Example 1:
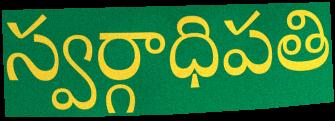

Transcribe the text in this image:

స్వర్గాధిపతి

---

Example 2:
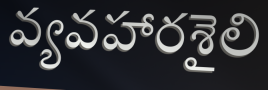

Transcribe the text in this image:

వ్యవహారశైలి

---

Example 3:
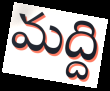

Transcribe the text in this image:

మద్ది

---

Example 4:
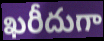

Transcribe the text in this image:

ఖరీదుగా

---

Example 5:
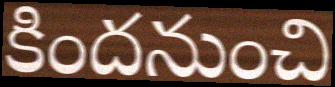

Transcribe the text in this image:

కిందనుంచి